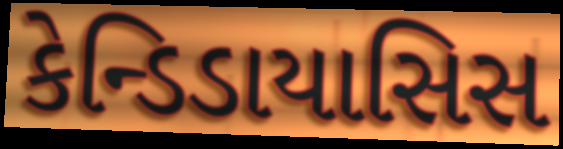
કેન્ડિડાયાસિસ